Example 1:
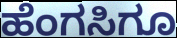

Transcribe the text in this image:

ಹೆಂಗಸಿಗೂ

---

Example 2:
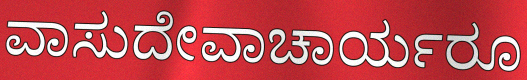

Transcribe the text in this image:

ವಾಸುದೇವಾಚಾರ್ಯರೂ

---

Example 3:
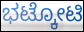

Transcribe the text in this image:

ಭಟ್ಕೋಟಿ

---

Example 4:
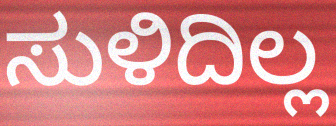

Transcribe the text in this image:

ಸುಳಿದಿಲ್ಲ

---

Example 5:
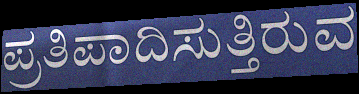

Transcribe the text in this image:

ಪ್ರತಿಪಾದಿಸುತ್ತಿರುವ